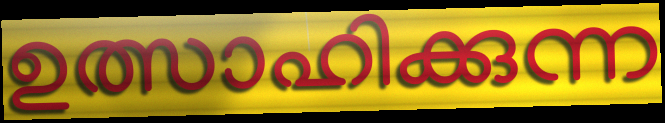
ഉത്സാഹിക്കുന്ന